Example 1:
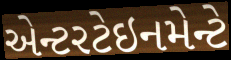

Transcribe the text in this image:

એન્ટરટેઇનમેન્ટે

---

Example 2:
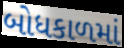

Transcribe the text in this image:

બોધકાળમાં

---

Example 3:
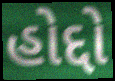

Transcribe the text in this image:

હોદ્દો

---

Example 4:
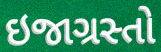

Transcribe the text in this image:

ઇજાગ્રસ્તો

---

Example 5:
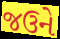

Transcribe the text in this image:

જઉને